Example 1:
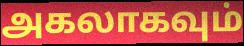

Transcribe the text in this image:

அகலாகவும்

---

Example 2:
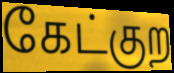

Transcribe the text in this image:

கேட்குற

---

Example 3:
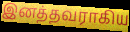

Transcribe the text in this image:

இனத்தவராகிய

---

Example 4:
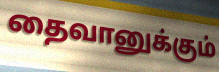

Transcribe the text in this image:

தைவானுக்கும்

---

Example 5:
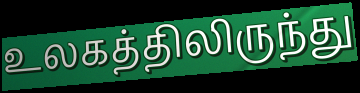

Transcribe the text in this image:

உலகத்திலிருந்து